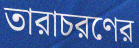
তারাচরণের